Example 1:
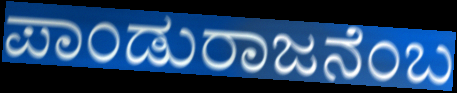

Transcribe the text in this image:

ಪಾಂಡುರಾಜನೆಂಬ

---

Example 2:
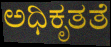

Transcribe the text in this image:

ಅಧಿಕೃತತೆ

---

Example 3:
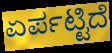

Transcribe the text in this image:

ಏರ್ಪಟ್ಟಿದೆ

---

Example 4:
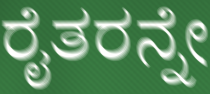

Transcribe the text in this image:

ರೈತರನ್ನೇ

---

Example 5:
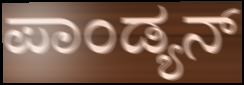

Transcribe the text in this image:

ಪಾಂಡ್ಯನ್